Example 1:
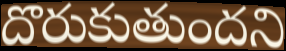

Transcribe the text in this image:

దొరుకుతుందని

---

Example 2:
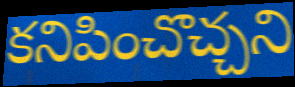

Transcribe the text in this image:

కనిపించొచ్చని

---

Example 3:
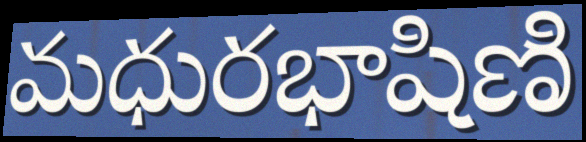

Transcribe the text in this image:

మధురభాషిణి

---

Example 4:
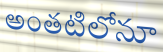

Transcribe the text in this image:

అంతటిలోనూ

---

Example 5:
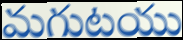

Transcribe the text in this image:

మగుటయు